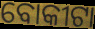
ବୋକୀଟା